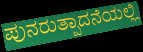
ಪುನರುತ್ಪಾದನೆಯಲ್ಲಿ